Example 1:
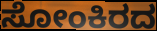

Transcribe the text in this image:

ಸೋಂಕಿರದ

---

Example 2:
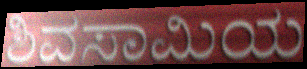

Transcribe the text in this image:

ಶಿವಸಾಮಿಯ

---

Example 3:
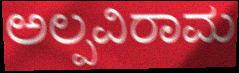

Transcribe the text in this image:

ಅಲ್ಪವಿರಾಮ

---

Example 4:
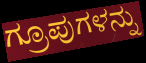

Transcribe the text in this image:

ಗ್ರೂಪುಗಳನ್ನು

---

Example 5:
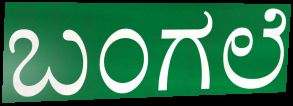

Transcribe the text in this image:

ಬಂಗಲೆ